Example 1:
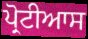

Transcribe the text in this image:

ਪ੍ਰੋਟੀਆਸ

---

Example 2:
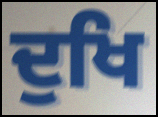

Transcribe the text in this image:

ਦੁਖਿ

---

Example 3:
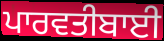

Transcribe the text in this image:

ਪਾਰਵਤੀਬਾਈ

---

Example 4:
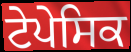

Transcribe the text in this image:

ਟੇਪੇਸਿਕ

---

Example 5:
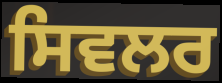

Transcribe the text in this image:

ਸਿਵਲਰ